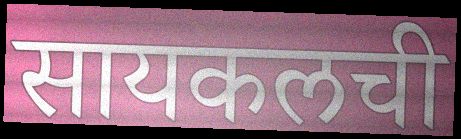
सायकलची